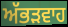
ਅੱਭੜਵਾਹ